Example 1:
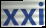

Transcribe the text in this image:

xxi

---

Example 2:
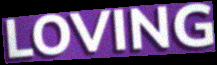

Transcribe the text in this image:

LOVING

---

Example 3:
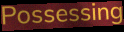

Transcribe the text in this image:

Possessing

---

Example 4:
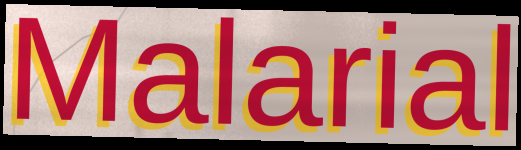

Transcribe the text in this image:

Malarial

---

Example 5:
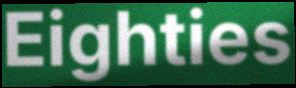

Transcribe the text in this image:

Eighties